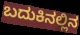
ಬದುಕಿನಲ್ಲಿನ